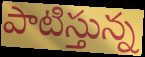
పాటిస్తున్న